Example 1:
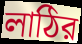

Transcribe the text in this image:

লাঠির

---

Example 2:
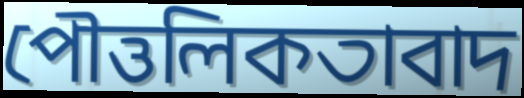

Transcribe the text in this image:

পৌত্তলিকতাবাদ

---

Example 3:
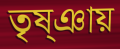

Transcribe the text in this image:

তৃষ্ঞায়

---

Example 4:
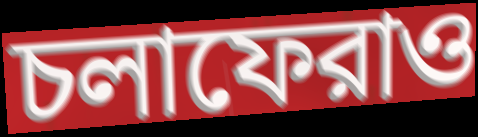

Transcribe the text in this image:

চলাফেরাও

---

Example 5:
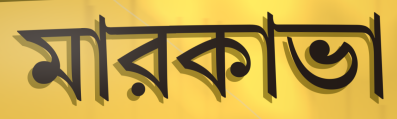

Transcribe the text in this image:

মারকাভা